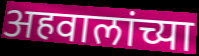
अहवालांच्या